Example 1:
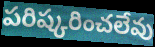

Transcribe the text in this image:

పరిష్కరించలేవు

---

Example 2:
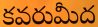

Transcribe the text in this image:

కవరుమీద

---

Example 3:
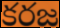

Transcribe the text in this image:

కరజ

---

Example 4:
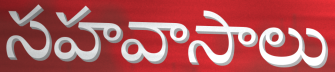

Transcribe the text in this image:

సహవాసాలు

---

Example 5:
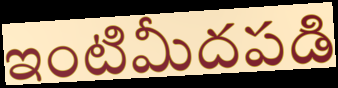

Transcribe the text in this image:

ఇంటిమీదపడి